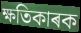
ক্ষতিকাৰক